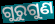
ଗୁରୁଗୁଣ